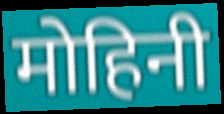
मोहिनी